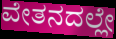
ವೇತನದಲ್ಲೇ